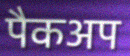
पैकअप